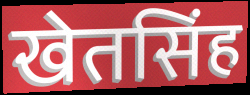
खेतसिंह